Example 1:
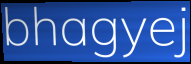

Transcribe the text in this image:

bhagyej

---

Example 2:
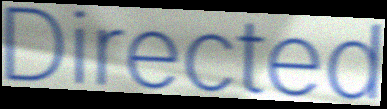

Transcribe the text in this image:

Directed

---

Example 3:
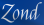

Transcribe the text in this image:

Zond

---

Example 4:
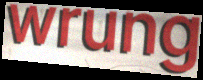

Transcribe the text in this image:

wrung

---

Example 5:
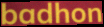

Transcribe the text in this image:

badhon